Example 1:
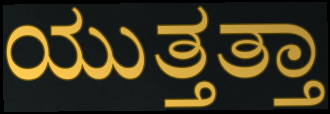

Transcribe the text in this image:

ಯುತ್ತತ್ತಾ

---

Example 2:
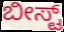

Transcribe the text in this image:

ಬೀಸ್ಟ್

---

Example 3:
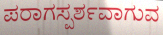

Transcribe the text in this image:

ಪರಾಗಸ್ಪರ್ಶವಾಗುವ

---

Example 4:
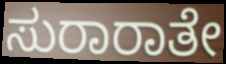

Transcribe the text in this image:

ಸುರಾರಾತೇ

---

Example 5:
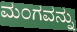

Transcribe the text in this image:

ಮಂಗವನ್ನು